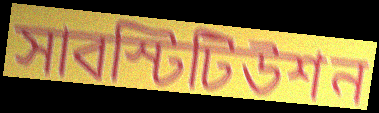
সাবস্টিটিউশন